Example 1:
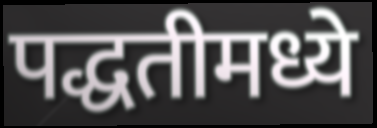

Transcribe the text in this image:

पद्धतीमध्ये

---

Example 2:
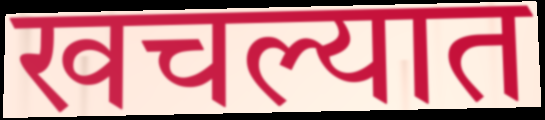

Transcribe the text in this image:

खचल्यात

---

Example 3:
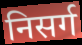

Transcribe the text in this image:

निसर्ग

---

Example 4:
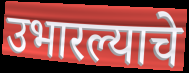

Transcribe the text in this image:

उभारल्याचे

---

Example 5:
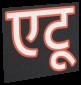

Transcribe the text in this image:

एटू